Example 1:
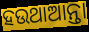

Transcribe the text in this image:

ହଉଥାଆନ୍ତା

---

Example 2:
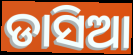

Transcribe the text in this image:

ଡାସିଆ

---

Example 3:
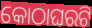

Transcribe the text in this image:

କୋଠାଘରଟି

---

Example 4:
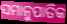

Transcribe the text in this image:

ସମାନୁପାତିକ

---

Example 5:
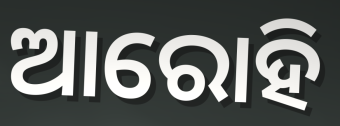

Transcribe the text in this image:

ଆରୋହି